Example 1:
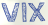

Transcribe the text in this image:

VIX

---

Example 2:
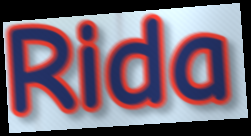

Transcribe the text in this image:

Rida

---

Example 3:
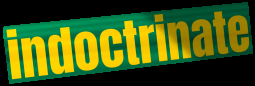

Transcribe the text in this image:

indoctrinate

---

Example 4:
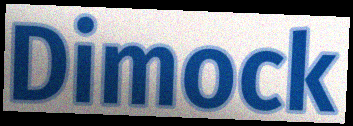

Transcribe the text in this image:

Dimock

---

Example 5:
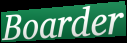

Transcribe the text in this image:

Boarder